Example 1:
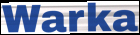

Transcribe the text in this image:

Warka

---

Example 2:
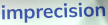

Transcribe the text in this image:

imprecision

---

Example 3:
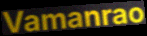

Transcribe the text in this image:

Vamanrao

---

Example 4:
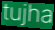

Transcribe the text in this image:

tujha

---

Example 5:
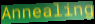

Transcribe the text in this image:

Annealing